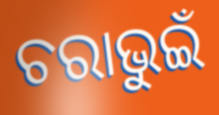
ଚରାଭୁଇଁ